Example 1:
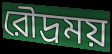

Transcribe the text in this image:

রৌদ্রময়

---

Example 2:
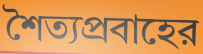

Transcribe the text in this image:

শৈত্যপ্রবাহের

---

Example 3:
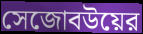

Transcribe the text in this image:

সেজোবউয়ের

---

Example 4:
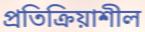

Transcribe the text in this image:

প্রতিক্রিয়াশীল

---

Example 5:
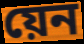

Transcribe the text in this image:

য়েন